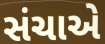
સંચાએ